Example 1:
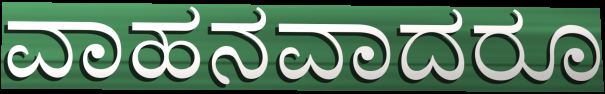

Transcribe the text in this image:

ವಾಹನವಾದರೂ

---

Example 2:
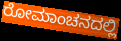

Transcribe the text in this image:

ರೋಮಾಂಚನದಲ್ಲಿ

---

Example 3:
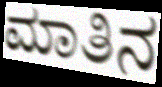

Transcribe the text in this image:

ಮಾತಿನ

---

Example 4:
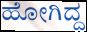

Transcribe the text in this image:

ಹೋಗಿದ್ದ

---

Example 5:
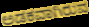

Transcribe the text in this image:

ಅಡಕವಾಗಿರುವ